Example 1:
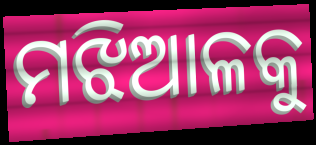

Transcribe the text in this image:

ମଝିଆଳକୁ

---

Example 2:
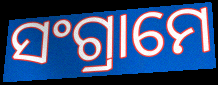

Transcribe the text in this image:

ସଂଗ୍ରାମେ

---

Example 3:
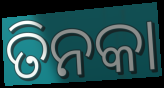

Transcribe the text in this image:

ତିନକା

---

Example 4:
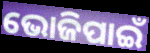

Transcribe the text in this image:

ଭୋଜିପାଇଁ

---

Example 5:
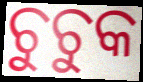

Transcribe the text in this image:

ଚୁଚୁକ